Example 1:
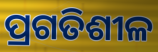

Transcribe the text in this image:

ପ୍ରଗତିଶୀଳ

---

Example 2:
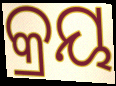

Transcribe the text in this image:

କ୍ରୟ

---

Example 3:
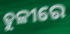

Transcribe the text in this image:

ତୁଳୀରେ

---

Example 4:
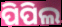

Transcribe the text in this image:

ପିପିଲ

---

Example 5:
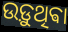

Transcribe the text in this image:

ଉଡ଼ୁଥିଵା